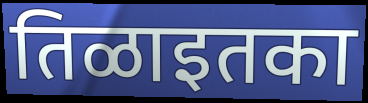
तिळाइतका